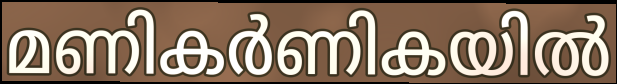
മണികർണികയിൽ